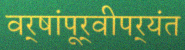
वर्षांपूर्वीपर्यंत